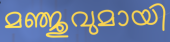
മഞ്ജുവുമായി